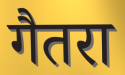
गैतरा